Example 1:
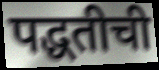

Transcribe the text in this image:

पद्धतीची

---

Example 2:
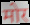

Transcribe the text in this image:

मोर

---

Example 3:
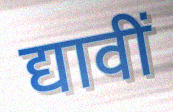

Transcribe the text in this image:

द्यावीं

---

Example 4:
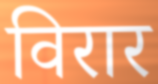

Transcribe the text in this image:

विरार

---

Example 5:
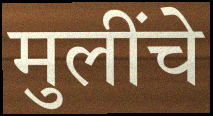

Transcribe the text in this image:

मुलींचे